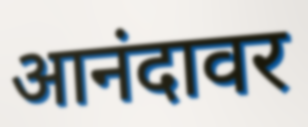
आनंदावर